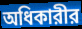
অধিকারীর